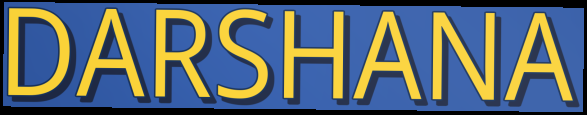
DARSHANA